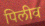
पिलीव